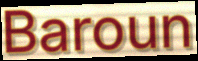
Baroun